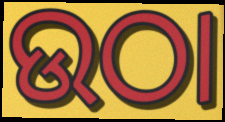
ଉଠା